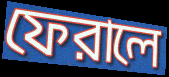
ফেরালে